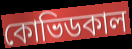
কোভিডকাল